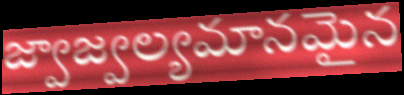
జ్వాజ్వల్యమానమైన